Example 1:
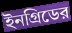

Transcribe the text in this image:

ইনগ্রিডের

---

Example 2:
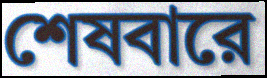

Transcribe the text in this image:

শেষবারে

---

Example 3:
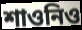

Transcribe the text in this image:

শাওনিও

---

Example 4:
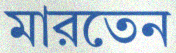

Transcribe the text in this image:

মারতেন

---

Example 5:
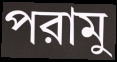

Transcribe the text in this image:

পরামু